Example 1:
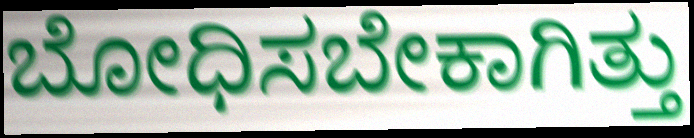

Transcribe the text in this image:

ಬೋಧಿಸಬೇಕಾಗಿತ್ತು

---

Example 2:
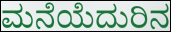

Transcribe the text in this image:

ಮನೆಯೆದುರಿನ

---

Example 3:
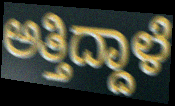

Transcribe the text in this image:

ಅತ್ತಿದ್ದಾಳೆ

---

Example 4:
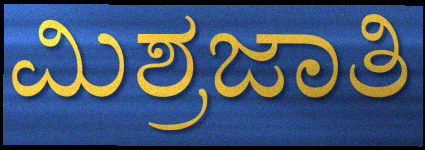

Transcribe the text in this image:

ಮಿಶ್ರಜಾತಿ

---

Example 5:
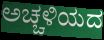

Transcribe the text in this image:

ಅಚ್ಚಳಿಯದ